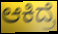
ಆಕಿದ್ರೆ